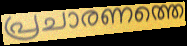
പ്രചാരണത്തെ